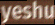
yeshu